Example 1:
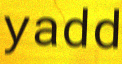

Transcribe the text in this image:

yadd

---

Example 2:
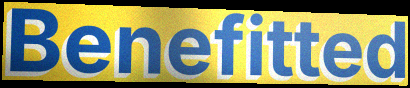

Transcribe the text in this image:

Benefitted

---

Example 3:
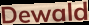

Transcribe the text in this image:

Dewald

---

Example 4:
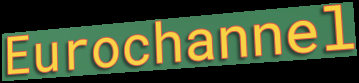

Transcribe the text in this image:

Eurochannel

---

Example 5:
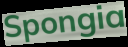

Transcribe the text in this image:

Spongia